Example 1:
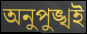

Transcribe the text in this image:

অনুপুঙ্খই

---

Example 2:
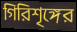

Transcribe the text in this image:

গিরিশৃঙ্গের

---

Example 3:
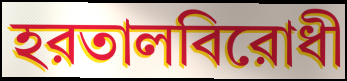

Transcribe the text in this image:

হরতালবিরোধী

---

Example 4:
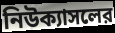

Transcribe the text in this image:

নিউক্যাসলের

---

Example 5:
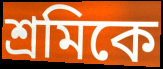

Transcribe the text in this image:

শ্রমিকে